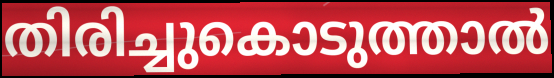
തിരിച്ചുകൊടുത്താൽ